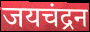
जयचंद्रन